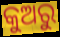
କୁଅରୁ